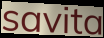
savita